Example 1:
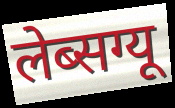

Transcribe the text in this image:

लेब्सग्यू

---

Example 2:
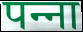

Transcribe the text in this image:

पन्‍ना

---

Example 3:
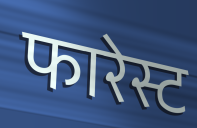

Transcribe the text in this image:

फारेस्‍ट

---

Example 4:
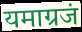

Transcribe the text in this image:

यमाग्रजं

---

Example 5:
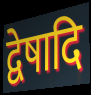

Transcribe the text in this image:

द्वेषादि